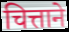
चित्ताने